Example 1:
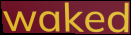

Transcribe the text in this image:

waked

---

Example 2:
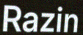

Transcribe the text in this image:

Razin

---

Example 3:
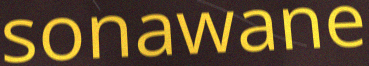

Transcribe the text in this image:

sonawane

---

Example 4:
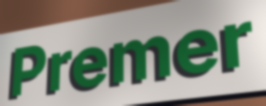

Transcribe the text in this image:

Premer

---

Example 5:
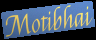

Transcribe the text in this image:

Motibhai